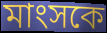
মাংসকে